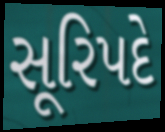
સૂરિપદે